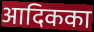
आदिकका